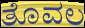
ತೊವಲ